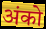
अंको